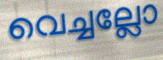
വെച്ചല്ലോ